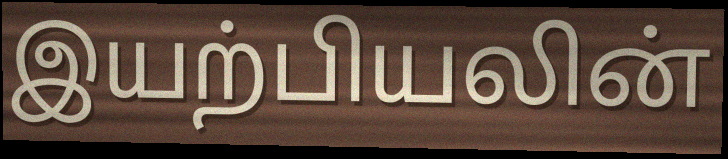
இயற்பியலின்